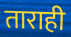
ताराही